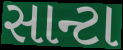
સાન્ટા